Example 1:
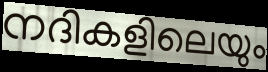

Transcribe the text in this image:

നദികളിലെയും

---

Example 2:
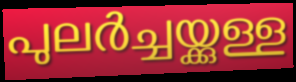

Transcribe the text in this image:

പുലർച്ചയ്ക്കുള്ള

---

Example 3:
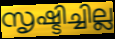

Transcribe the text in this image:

സൃഷ്ടിച്ചില്ല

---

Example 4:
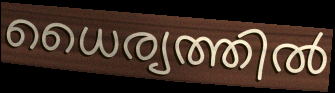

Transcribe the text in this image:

ധൈര്യത്തിൽ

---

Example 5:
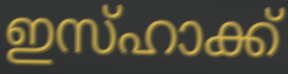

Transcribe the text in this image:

ഇസ്ഹാക്ക്